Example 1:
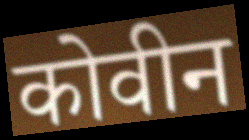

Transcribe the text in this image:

कोवीन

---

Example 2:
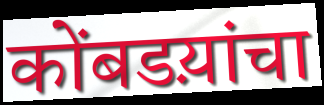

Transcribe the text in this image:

कोंबडय़ांचा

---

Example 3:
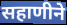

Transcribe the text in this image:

सहाणीने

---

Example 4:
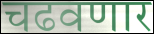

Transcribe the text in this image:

चढवणार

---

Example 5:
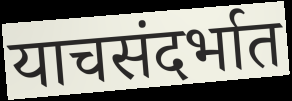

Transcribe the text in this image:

याचसंदर्भात